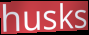
husks